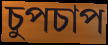
চুপচাপ